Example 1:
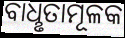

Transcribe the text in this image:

ବାଧୢତାମୂଳକ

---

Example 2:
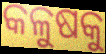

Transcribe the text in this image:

କଳୁଷକୁ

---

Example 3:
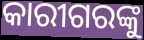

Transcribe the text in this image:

କାରୀଗରଙ୍କୁ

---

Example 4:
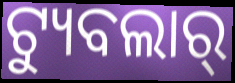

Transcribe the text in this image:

ଟ୍ୟୁବଲାର୍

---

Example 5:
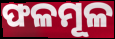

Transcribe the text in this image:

ଫଳମୂଳ